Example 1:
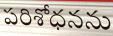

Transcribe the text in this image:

పరిశోధనను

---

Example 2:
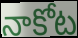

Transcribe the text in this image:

నాకోట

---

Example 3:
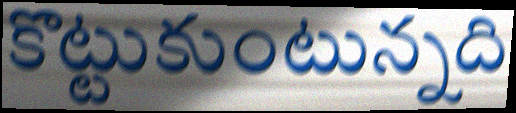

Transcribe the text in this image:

కొట్టుకుంటున్నది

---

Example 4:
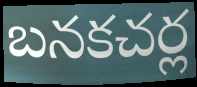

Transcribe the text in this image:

బనకచర్ల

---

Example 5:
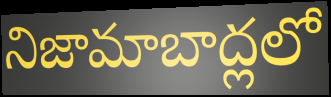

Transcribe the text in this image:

నిజామాబాద్లలో